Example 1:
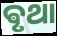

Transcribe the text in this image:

ଵୃଥା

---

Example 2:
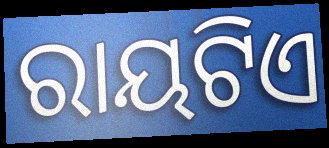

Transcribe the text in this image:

ରାୟଟିଏ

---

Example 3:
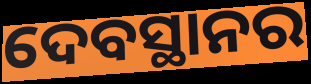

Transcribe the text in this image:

ଦେବସ୍ଥାନର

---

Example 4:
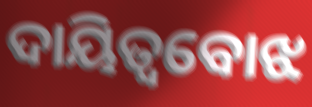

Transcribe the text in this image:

ଦାୟିତ୍ୱବୋଝ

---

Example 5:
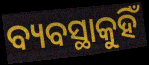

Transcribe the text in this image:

ବ୍ୟବସ୍ଥାକୁହିଁ